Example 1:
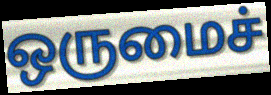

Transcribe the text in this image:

ஒருமைச்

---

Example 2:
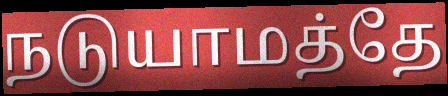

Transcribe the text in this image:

நடுயாமத்தே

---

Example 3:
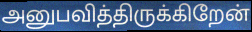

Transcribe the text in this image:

அனுபவித்திருக்கிறேன்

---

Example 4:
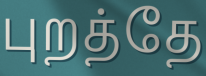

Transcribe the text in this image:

புறத்தே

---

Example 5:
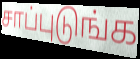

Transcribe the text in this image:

சாப்புடுங்க